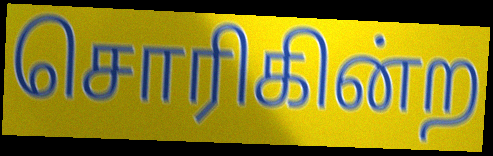
சொரிகின்ற